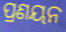
ପ୍ରଣୟନ